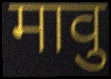
मावु